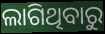
ଲାଗିଥିବାରୁ